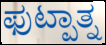
ಫುಟ್ಪಾತ್ನ